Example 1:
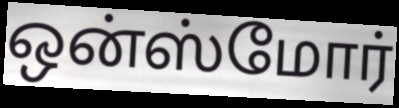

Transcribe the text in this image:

ஒன்ஸ்மோர்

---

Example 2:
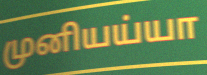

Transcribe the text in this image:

முனியய்யா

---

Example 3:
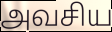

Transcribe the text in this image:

அவசிய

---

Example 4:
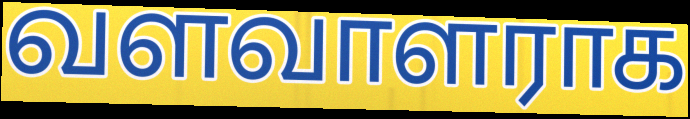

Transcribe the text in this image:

வளவாளராக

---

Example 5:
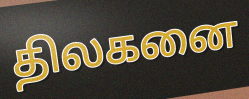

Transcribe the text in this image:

திலகனை